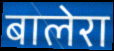
बालेरा